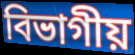
বিভাগীয়